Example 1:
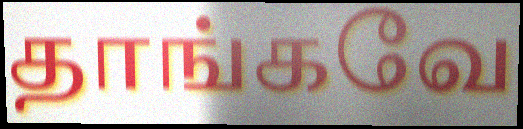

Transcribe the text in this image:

தாங்கவே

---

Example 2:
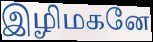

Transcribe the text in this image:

இழிமகனே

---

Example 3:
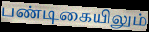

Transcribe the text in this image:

பண்டிகையிலும்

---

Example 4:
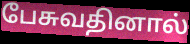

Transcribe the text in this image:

பேசுவதினால்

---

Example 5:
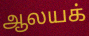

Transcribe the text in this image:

ஆலயக்